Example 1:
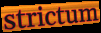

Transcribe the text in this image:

strictum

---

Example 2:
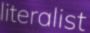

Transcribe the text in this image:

literalist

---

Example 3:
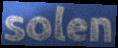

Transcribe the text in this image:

solen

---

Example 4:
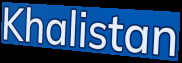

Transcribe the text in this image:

Khalistan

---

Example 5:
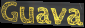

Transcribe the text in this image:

Guava